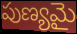
పుణ్యమై